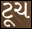
ટૂચ